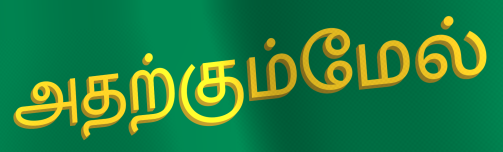
அதற்கும்மேல்